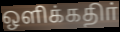
ஒளிக்கதிர்